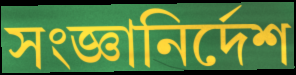
সংজ্ঞানির্দেশ